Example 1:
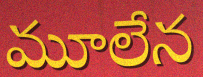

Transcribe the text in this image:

మూలేన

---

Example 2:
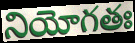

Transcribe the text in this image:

నియోగతః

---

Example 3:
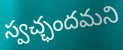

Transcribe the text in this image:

స్వచ్ఛందమని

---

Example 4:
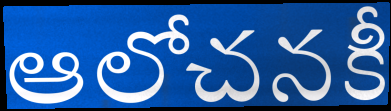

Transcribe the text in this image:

ఆలోచనకీ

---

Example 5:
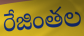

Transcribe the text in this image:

రేజింతల